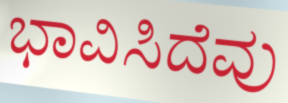
ಭಾವಿಸಿದೆವು